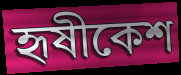
হৃষীকেশ